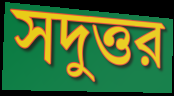
সদুত্তর